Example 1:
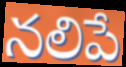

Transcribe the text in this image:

నలిపే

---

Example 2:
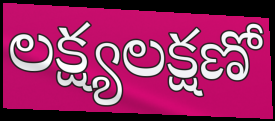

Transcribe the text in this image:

లక్ష్యలక్షణో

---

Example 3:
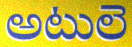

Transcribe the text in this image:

అటులె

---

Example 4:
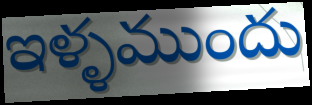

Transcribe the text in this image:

ఇళ్ళముందు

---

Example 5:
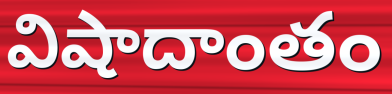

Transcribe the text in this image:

విషాదాంతం